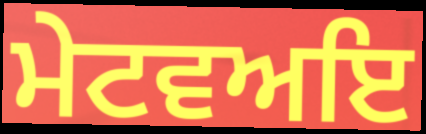
ਮੇਟਵਅਇ